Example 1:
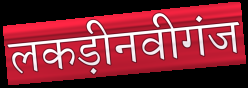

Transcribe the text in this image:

लकड़ीनवीगंज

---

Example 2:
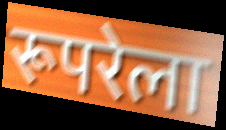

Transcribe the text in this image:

रूपरेला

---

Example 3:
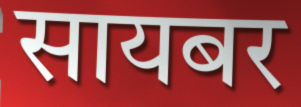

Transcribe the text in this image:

सायबर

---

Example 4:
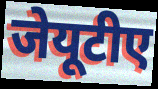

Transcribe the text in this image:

जेयूटीए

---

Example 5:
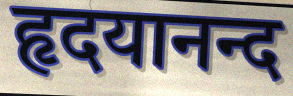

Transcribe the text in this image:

हृदयानन्द